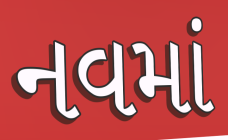
નવમાં